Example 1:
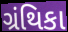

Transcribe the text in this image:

ગ્રંથિકા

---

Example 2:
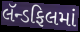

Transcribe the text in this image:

લૅન્ડફિલમાં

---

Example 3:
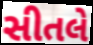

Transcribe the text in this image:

સીતલે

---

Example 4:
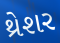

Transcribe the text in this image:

થ્રેશર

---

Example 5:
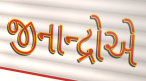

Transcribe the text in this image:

જીનાન્દ્રોએ